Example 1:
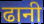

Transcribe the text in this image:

ढानी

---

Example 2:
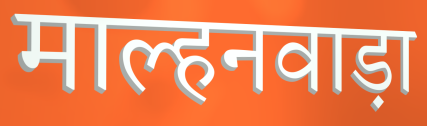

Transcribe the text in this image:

माल्हनवाड़ा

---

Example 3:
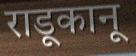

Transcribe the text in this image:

राडूकानू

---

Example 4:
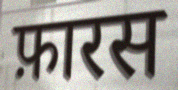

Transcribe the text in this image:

फ़ारस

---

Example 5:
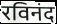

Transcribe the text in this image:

रविनंद